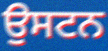
ਉਸਟਨ